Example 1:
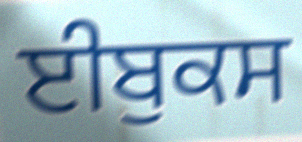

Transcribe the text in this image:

ਈਬੁਕਸ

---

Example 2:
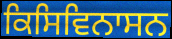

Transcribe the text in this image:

ਕਿਸਿਵਿਨਾਸਨ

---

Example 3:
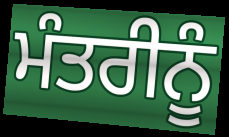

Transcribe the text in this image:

ਮੰਤਰੀਨੂੰ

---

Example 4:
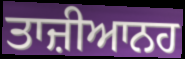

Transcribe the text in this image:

ਤਾਜ਼ੀਆਨਹ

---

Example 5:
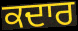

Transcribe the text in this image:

ਕਦਾਰ